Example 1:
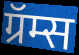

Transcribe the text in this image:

ग्रॅम्स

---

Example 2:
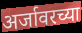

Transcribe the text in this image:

अर्जावरच्या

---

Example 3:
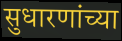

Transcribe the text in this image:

सुधारणांच्या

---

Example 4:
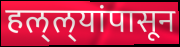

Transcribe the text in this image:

हल्ल्यांपासून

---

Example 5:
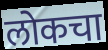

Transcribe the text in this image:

लोकचा